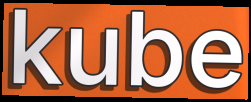
kube